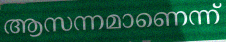
ആസന്നമാണെന്ന്